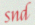
snd